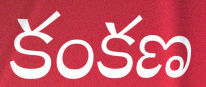
కంకణ